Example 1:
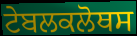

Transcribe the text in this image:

ਟੇਬਲਕਲੋਥਸ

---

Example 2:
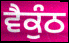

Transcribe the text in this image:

ਵੈਕੁੰਠ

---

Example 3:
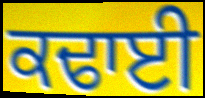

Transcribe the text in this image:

ਕਢਾਈ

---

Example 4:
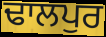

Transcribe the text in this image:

ਢਾਲਪੁਰ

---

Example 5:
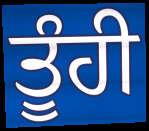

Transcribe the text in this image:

ਤੂੰਹੀ